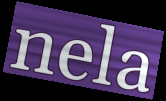
nela